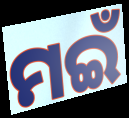
ମଇଁ